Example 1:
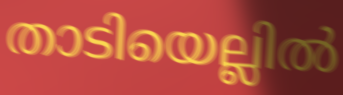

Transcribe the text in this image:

താടിയെല്ലിൽ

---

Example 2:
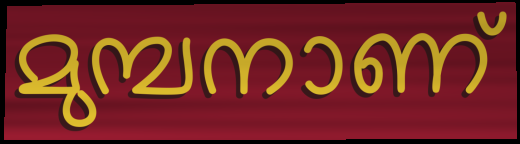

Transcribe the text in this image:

മുമ്പനാണ്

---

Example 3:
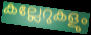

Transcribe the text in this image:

കല്ലേറുകളും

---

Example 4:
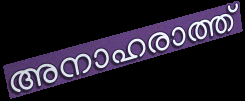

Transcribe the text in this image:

അനാഹരാത്ത്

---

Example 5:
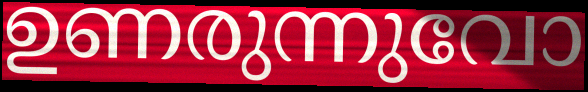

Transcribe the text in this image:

ഉണരുന്നുവോ